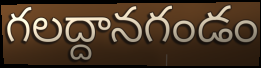
గలద్దానగండం